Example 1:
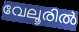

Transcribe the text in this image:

വേലൂരിൽ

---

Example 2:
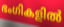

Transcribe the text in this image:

ഭംഗികളിൽ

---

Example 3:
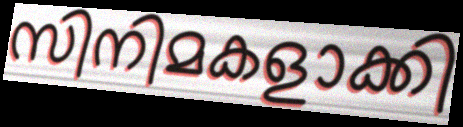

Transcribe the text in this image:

സിനിമകളാക്കി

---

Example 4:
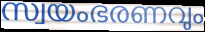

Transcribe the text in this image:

സ്വയംഭരണവും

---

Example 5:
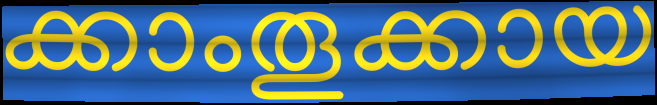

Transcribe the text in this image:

ക്കാംതൂക്കായ